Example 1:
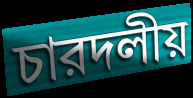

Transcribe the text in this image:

চারদলীয়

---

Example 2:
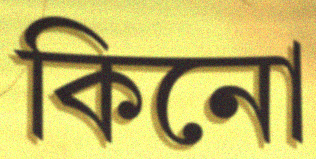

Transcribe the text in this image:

কিনো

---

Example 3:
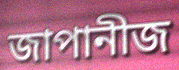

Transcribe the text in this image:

জাপানীজ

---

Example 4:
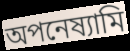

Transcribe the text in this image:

অপনেষ্যামি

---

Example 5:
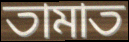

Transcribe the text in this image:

তামাত